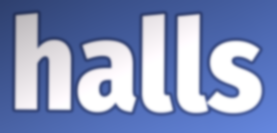
halls